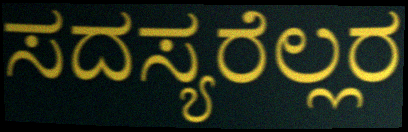
ಸದಸ್ಯರೆಲ್ಲರ